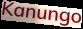
Kanungo